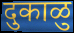
दुकाळु